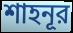
শাহনূর